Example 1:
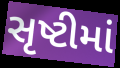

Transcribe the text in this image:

સૃષ્ટીમાં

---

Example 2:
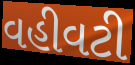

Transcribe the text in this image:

વહીવટી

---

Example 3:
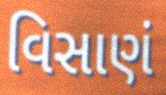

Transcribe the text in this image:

વિસાણં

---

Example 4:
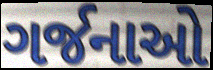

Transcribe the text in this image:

ગર્જનાઓ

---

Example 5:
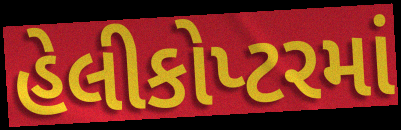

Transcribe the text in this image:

હેલીકોપ્ટરમાં